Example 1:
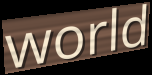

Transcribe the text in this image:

world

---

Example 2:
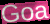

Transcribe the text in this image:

Goa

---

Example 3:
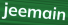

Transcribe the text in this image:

jeemain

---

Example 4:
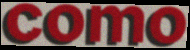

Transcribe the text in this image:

como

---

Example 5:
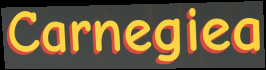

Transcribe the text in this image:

Carnegiea